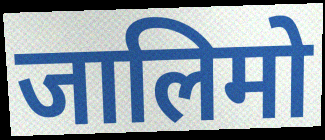
जालिमो